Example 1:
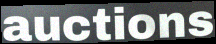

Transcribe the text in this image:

auctions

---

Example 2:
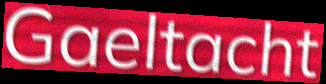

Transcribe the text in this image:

Gaeltacht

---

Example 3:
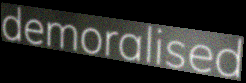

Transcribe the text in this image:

demoralised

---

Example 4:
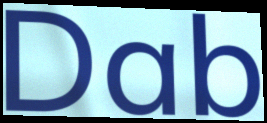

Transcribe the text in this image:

Dab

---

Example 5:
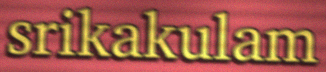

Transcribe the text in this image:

srikakulam